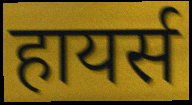
हायर्स